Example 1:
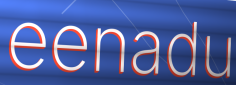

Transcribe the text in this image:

eenadu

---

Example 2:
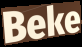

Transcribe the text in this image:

Beke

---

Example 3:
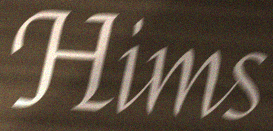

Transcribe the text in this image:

Hims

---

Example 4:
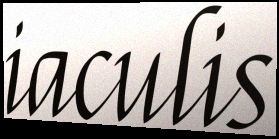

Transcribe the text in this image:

iaculis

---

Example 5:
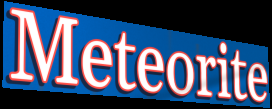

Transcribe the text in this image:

Meteorite